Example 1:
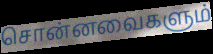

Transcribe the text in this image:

சொன்னவைகளும்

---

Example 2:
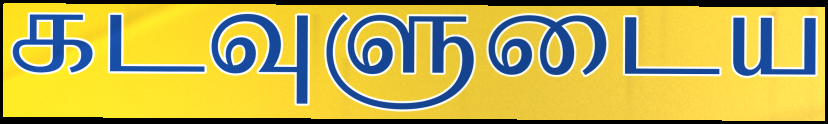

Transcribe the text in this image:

கடவுளுடைய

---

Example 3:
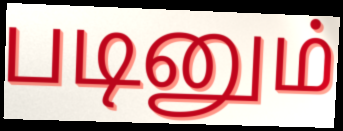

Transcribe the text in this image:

படினும்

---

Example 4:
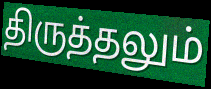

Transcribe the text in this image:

திருத்தலும்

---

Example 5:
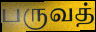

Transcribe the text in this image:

பருவத்